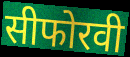
सीफोरवी